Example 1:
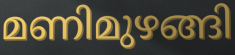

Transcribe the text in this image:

മണിമുഴങ്ങി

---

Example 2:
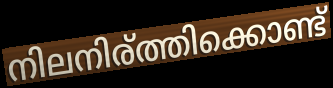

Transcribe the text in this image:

നിലനിര്ത്തിക്കൊണ്ട്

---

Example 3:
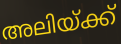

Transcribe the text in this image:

അലിയ്ക്ക്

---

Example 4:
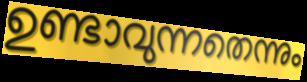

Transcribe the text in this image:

ഉണ്ടാവുന്നതെന്നും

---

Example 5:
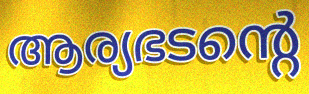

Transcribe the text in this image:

ആര്യഭടന്റെ